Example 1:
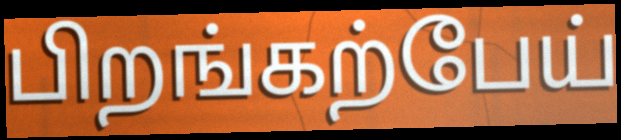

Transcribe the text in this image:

பிறங்கற்பேய்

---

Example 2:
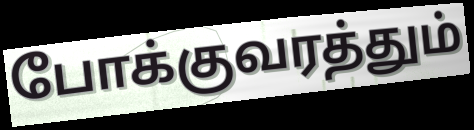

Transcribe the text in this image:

போக்குவரத்தும்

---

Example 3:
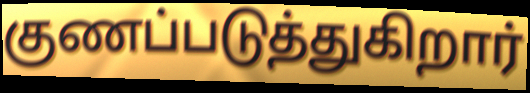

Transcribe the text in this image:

குணப்படுத்துகிறார்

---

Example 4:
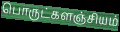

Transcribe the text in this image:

பொருட்களஞ்சியம்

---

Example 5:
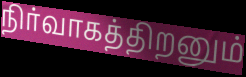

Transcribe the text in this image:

நிர்வாகத்திறனும்